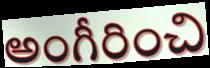
అంగీరించి